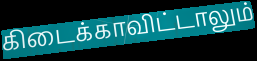
கிடைக்காவிட்டாலும்